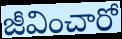
జీవించారో